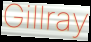
Gillray